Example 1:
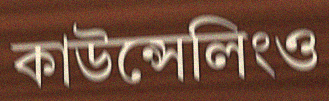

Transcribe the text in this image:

কাউন্সেলিংও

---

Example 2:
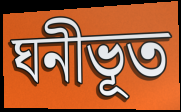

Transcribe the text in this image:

ঘনীভূত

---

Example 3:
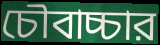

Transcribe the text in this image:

চৌবাচ্চার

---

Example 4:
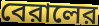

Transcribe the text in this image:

বেরালের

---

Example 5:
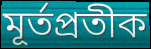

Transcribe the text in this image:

মূর্তপ্রতীক